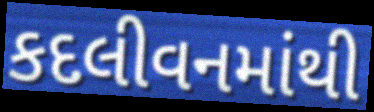
કદલીવનમાંથી